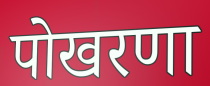
पोखरणा